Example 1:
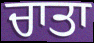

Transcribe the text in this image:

ਚਾਤਾ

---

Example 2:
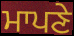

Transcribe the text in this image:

ਮਾਪਣੇ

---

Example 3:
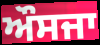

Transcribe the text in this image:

ਔਸਜਾ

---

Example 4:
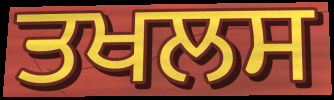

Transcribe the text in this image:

ਤਖਲਸ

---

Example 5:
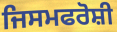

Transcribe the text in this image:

ਜਿਸਮਫਰੋਸ਼ੀ